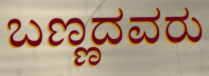
ಬಣ್ಣದವರು